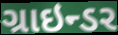
ગ્રાઇન્ડર